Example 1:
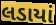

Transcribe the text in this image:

લડાયાં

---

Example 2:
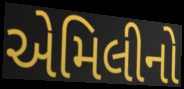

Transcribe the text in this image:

એમિલીનો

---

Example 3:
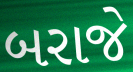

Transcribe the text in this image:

બરાજે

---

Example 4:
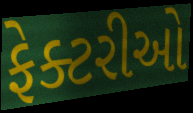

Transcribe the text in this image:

ફેક્ટરીઓ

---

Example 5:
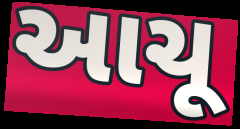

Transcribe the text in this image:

આચૂ